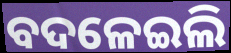
ବଦଳେଇଲି